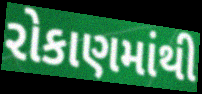
રોકાણમાંથી